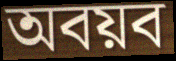
অবয়ব